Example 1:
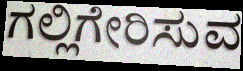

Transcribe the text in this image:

ಗಲ್ಲಿಗೇರಿಸುವ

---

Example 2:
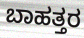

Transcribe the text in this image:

ಬಾಹತ್ತರ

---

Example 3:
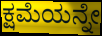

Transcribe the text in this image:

ಕ್ಷಮೆಯನ್ನೇ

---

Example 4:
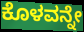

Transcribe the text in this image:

ಕೊಳವನ್ನೇ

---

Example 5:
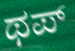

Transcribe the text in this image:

ಥಪ್